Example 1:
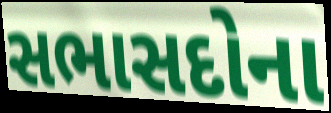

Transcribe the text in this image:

સભાસદોના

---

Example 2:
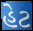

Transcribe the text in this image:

હેટ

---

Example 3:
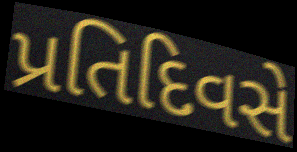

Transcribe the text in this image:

પ્રતિદિવસે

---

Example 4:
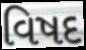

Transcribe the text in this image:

વિષદ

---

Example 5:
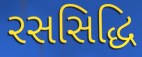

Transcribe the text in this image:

રસસિદ્ધિ